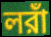
লরাঁ